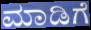
ಮಾಡಿಗೆ